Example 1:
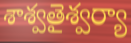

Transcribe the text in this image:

శాశ్వతైశ్వర్యా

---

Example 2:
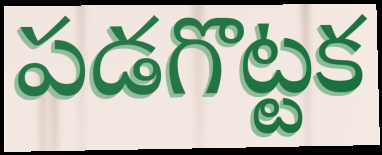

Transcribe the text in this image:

పడగొట్టక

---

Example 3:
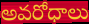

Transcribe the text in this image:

అవరోధాలు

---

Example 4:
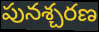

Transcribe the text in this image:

పునశ్చరణ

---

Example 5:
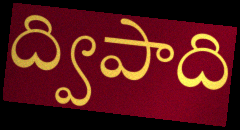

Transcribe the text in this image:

ద్విపాది